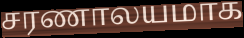
சரணாலயமாக